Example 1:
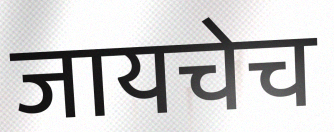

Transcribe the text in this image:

जायचेच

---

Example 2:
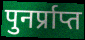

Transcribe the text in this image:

पुनर्प्राप्त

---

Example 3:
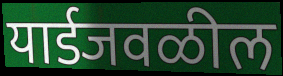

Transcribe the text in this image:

यार्डजवळील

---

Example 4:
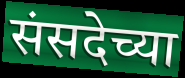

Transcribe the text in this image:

संसदेच्या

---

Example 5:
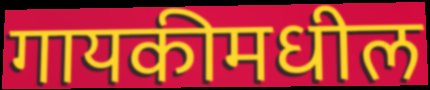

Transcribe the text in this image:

गायकीमधील